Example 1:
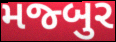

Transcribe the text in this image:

મજ્બુર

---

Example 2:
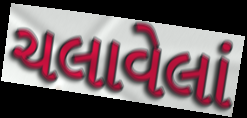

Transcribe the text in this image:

ચલાવેલાં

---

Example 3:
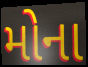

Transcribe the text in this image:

મોના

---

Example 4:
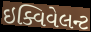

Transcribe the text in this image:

ઇક્વિવેલન્ટ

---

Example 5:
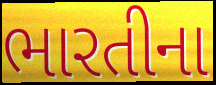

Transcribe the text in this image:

ભારતીના